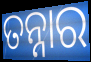
ତନ୍ନାର